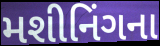
મશીનિંગના